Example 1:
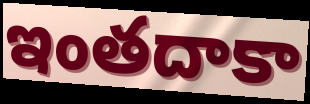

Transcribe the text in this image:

ఇంతదాకా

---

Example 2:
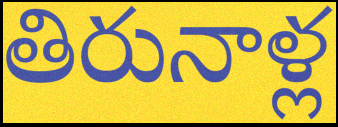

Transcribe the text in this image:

తిరునాళ్ల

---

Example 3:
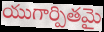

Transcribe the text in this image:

యుగార్పితమై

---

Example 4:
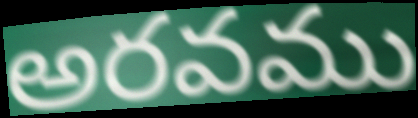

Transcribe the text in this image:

అరవము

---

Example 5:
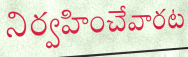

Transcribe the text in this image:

నిర్వహించేవారట